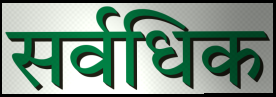
सर्वधिक